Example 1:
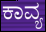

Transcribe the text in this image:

ಕಾವ್ಯ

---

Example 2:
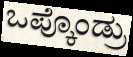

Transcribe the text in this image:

ಒಪ್ಕೊಂಡ್ರು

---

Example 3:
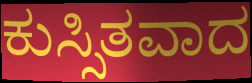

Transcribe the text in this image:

ಕುಸ್ಸಿತವಾದ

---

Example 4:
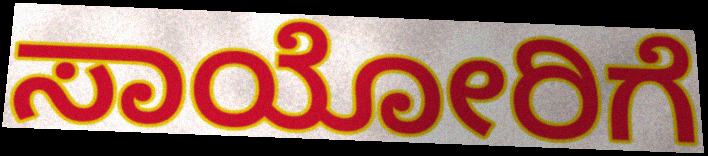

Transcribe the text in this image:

ಸಾಯೋರಿಗೆ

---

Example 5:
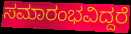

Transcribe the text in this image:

ಸಮಾರಂಭವಿದ್ದರೆ